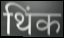
थिंक